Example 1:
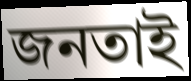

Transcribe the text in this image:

জনতাই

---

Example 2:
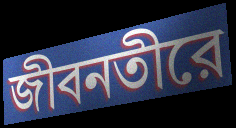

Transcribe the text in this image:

জীবনতীরে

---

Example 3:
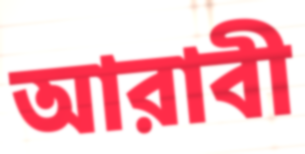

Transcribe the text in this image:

আরাবী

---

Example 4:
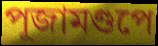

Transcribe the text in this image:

পূজামণ্ডপে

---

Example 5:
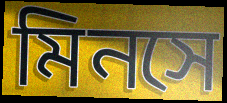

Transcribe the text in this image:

মিনসে